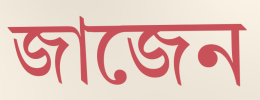
জাজেন